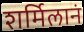
शर्मिलानं